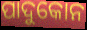
ପାଦୁକୋନ